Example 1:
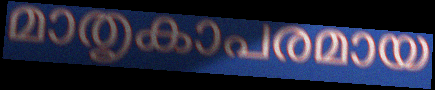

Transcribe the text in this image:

മാതൃകാപരമായ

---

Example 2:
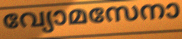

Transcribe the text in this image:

വ്യോമസേനാ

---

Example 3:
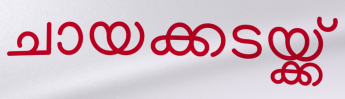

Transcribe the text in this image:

ചായക്കടയ്ക്ക്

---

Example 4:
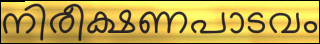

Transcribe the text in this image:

നിരീക്ഷണപാടവം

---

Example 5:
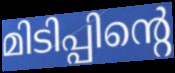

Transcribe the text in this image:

മിടിപ്പിന്റെ